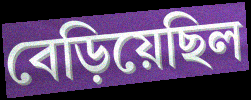
বেড়িয়েছিল